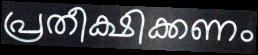
പ്രതീക്ഷിക്കണം